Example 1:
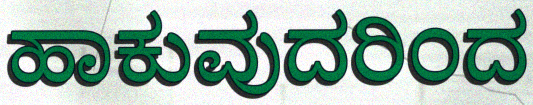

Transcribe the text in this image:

ಹಾಕುವುದರಿಂದ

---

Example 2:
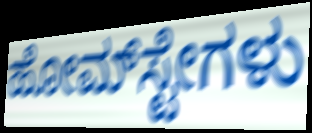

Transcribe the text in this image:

ಹೋಮ್‌ಸ್ಟೇಗಳು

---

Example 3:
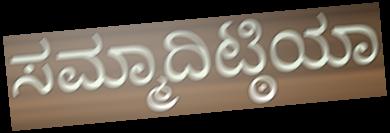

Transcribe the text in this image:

ಸಮ್ಮಾದಿಟ್ಠಿಯಾ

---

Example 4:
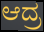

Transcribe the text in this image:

ಆದ್ರ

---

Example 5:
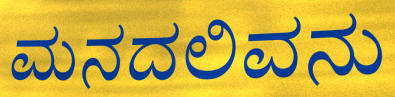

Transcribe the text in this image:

ಮನದಲಿವನು